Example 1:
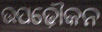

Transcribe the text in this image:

ଉପଢ଼ୌକନ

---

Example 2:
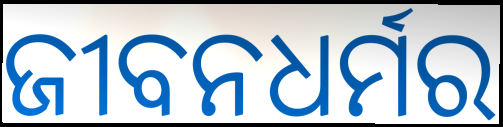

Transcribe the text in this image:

ଜୀବନଧର୍ମର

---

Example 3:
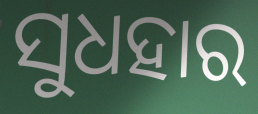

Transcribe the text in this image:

ସୁଧହାର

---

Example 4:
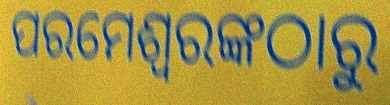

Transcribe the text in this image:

ପରମେଶ୍ଵରଙ୍କଠାରୁ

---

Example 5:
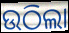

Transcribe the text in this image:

ଉଠିଲା